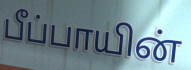
பீப்பாயின்